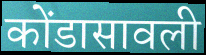
कोंडासावली